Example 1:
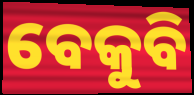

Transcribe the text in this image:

ବେକୁବି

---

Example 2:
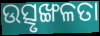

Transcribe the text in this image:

ଉତ୍ସୃଙ୍ଖଳତା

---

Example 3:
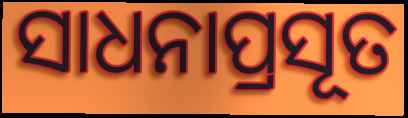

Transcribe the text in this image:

ସାଧନାପ୍ରସୂତ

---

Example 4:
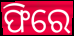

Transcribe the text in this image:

ଫିରେ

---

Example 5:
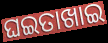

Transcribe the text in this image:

ଘଇତାଖାଇ